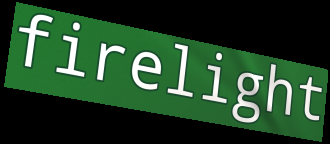
firelight